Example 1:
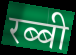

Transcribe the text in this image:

रब्बी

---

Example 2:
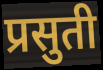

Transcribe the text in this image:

प्रसुती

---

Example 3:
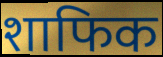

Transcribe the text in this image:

शाफिक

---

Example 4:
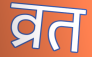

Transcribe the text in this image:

व्रत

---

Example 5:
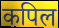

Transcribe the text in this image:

कपिल